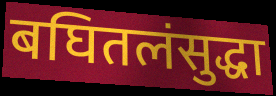
बघितलंसुद्धा